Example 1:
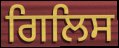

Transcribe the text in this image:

ਗਿਲਿਸ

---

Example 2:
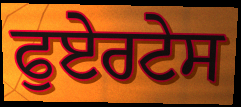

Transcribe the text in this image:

ਫੁਏਰਟੇਸ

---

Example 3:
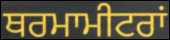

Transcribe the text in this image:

ਥਰਮਾਮੀਟਰਾਂ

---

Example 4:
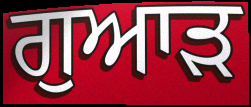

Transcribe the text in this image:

ਗੁਆੜ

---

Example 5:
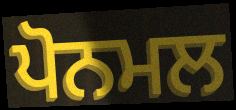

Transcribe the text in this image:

ਪੋਨਮਲ